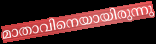
മാതാവിനെയായിരുന്നു